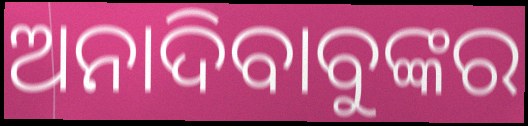
ଅନାଦିବାବୁଙ୍କର